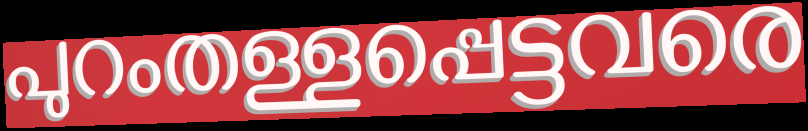
പുറംതള്ളപ്പെട്ടവരെ